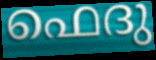
ഫെദു